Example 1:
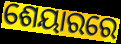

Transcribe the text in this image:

ଶେୟାରରେ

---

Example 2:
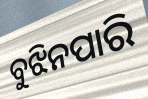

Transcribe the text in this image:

ବୁଝିନପାରି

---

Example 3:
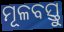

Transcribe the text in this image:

ମୂଳବସ୍ତୁ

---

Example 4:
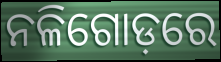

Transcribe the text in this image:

ନଳିଗୋଡ଼ରେ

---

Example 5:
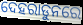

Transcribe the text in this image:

ଦେହରାଡୁନରେ